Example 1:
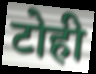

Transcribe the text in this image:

टोही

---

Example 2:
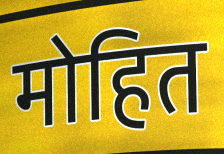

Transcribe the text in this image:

मोहित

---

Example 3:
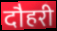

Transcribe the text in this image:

दौहरी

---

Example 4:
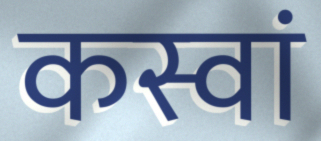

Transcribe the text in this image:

कस्‍वां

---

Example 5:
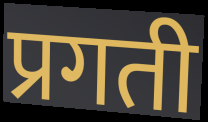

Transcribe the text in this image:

प्रगती